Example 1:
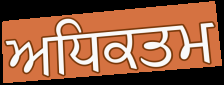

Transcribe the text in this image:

ਅਧਿਕਤਮ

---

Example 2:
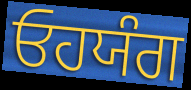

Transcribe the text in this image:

ਓਹਯੰਗ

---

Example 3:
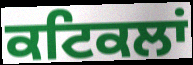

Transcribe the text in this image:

ਕਟਿਕਲਾਂ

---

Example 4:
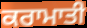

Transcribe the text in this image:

ਕਰਾਮਾਤੀ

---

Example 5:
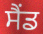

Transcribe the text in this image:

ਸੈਂਡ